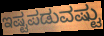
ಇಷ್ಟಪಡುವಷ್ಟು